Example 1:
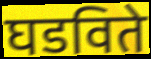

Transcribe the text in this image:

घडविते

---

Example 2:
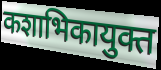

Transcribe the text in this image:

कशाभिकायुक्त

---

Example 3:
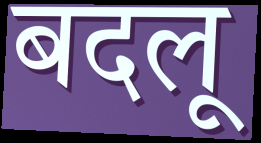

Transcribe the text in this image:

बदलू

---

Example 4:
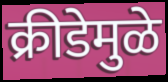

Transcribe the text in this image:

क्रीडेमुळे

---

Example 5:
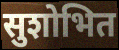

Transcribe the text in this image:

सुशोभित